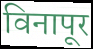
विनापूर